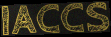
IACCS